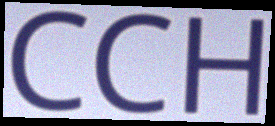
CCH